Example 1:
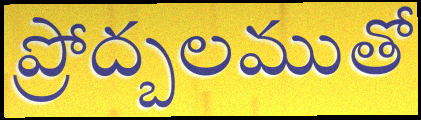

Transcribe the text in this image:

ప్రోద్బలముతో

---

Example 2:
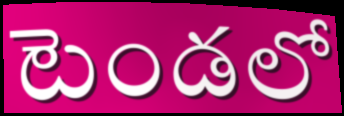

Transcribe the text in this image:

టెండలో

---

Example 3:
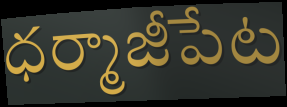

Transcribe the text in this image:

ధర్మాజీపేట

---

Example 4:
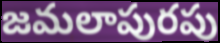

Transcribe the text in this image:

జమలాపురపు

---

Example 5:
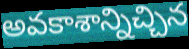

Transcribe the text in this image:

అవకాశాన్నిచ్చిన